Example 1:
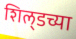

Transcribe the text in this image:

शिल्डच्या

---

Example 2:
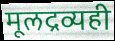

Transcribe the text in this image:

मूलद्रव्यही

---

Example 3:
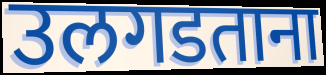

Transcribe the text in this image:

उलगडताना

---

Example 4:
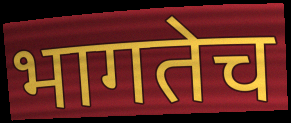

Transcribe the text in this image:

भागतेच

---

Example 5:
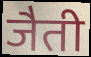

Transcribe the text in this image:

जैती